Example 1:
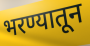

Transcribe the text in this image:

भरण्यातून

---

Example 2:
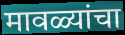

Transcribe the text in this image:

मावळ्यांचा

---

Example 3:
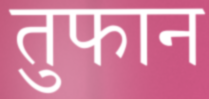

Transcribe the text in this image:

तुफान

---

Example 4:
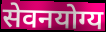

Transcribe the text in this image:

सेवनयोग्य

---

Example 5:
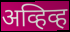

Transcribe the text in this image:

अव्हिव्ह